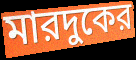
মারদুকের